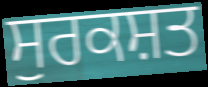
ਸੁਰਕਸ਼ਤ